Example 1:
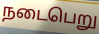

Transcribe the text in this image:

நடைபெறு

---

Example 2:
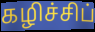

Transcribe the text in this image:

கழிச்சிப்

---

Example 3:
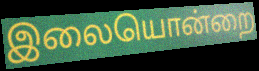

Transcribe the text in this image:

இலையொன்றை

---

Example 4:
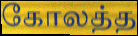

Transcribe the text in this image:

கோலத்த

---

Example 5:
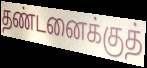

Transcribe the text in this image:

தண்டனைக்குத்